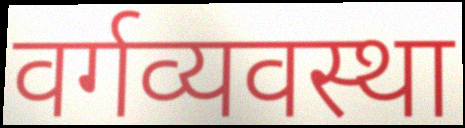
वर्गव्यवस्था